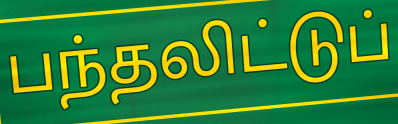
பந்தலிட்டுப்